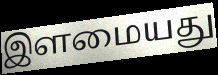
இளமையது